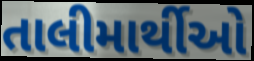
તાલીમાર્થીઓ